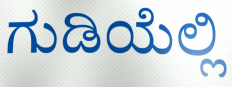
ಗುಡಿಯೆಲ್ಲಿ